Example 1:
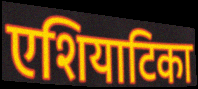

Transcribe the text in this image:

एशियाटिका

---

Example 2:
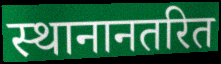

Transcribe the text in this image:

स्थानानतरित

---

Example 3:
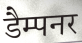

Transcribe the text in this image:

डैम्पनर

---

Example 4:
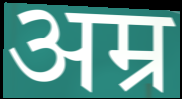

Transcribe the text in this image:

अम्र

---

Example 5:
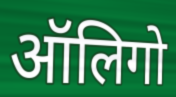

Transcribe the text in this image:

ऑलिगो